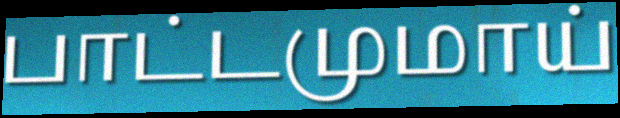
பாட்டமுமாய்